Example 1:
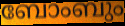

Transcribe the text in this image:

ബോംബും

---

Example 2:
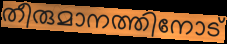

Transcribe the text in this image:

തീരുമാനത്തിനോട്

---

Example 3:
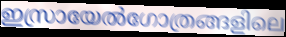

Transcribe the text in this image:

ഇസ്രായേൽഗോത്രങ്ങളിലെ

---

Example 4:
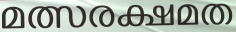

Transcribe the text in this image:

മത്സരക്ഷമത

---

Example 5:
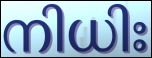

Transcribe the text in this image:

നിധിഃ